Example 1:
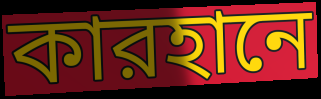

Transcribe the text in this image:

কারহানে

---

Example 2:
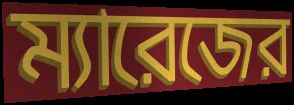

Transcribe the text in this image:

ম্যারেজের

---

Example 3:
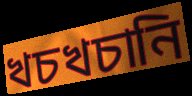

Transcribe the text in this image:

খচখচানি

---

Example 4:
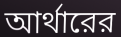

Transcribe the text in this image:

আর্থারের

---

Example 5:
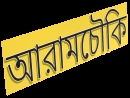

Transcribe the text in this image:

আরামচৌকি